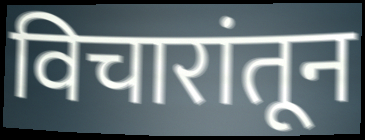
विचारांतून